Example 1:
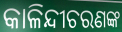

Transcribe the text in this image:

କାଳିନ୍ଦୀଚରଣଙ୍କ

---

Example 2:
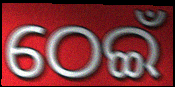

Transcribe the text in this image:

ଠେଇଁ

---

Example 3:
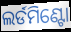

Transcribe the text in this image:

ଲର୍ଡମିଣ୍ଟୋ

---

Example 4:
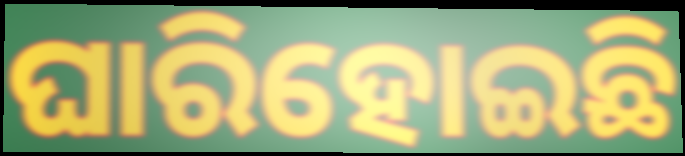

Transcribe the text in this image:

ଘାରିହୋଇଛି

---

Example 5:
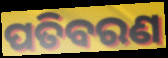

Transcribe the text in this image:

ପତିବରଣ